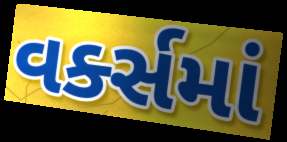
વર્ક્સમાં